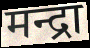
मन्द्रा